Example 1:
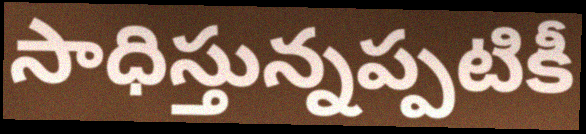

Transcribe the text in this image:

సాధిస్తున్నప్పటికీ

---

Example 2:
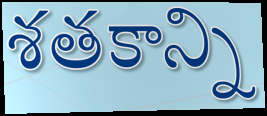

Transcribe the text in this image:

శతకాన్ని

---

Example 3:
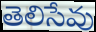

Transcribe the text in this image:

తెలిసేవు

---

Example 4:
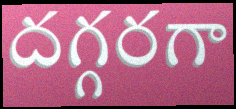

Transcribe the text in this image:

దగ్గరగా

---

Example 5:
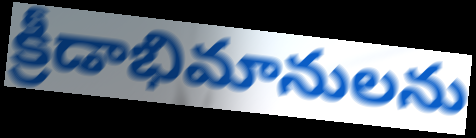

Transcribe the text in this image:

క్రీడాభిమానులను